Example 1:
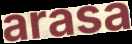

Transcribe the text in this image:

arasa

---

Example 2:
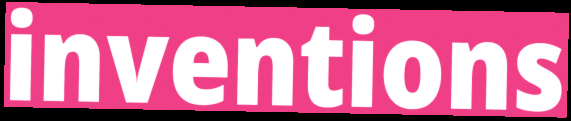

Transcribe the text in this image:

inventions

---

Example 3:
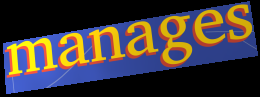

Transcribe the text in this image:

manages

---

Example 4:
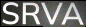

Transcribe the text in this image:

SRVA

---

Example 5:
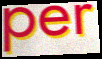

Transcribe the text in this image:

per